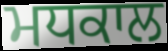
ਮਧਕਾਲ